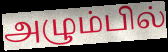
அழும்பில்